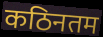
कठिनतम